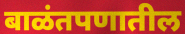
बाळंतपणातील